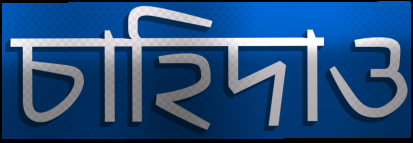
চাহিদাও